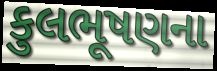
કુલભૂષણના